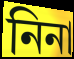
নিনা